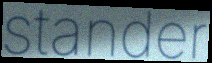
stander